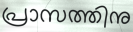
പ്രാസത്തിനു